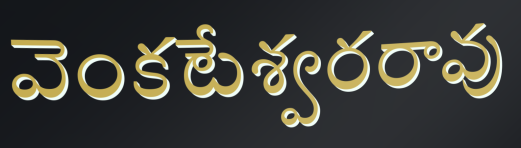
వెంకటేశ్వరరావు